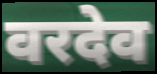
वरदेव